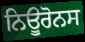
ਨਿਊਰੋਨਸ